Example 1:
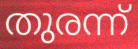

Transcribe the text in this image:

തുരന്ന്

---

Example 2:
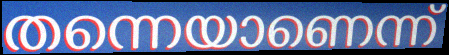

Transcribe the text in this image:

തന്നെയാണെന്ന്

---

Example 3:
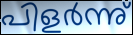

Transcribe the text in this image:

പിളർന്നു്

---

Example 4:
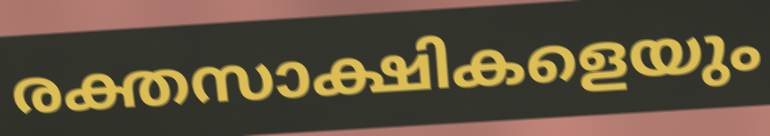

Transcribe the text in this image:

രക്തസാക്ഷികളെയും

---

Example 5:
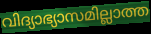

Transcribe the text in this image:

വിദ്യാഭ്യാസമില്ലാത്ത